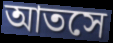
আতসে